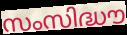
സംസിദ്ധൗ